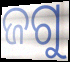
ଜଗୁ